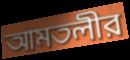
আমতলীর